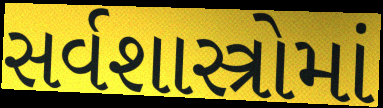
સર્વશાસ્ત્રોમાં